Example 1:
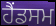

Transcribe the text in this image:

ਹੈਂਡਸਮ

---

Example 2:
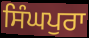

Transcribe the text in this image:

ਸਿੰਘਪੁਰਾ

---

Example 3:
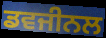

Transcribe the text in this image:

ਡਵਜੀਨਲ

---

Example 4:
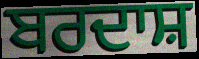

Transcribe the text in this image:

ਬਰਦਾਸ਼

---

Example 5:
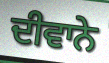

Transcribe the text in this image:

ਦੀਵਾਨੇ